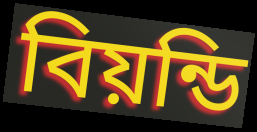
বিয়ন্ডি